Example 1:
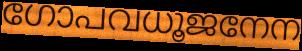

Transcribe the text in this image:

ഗോപവധൂജനേന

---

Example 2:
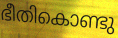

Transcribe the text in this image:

ഭീതികൊണ്ടു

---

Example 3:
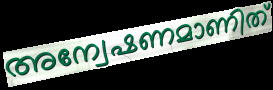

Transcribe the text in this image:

അന്വേഷണമാണിത്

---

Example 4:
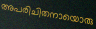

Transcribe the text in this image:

അപരിചിതനായൊരു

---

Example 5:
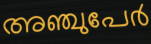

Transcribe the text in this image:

അഞ്ചുപേർ